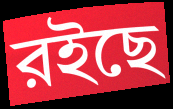
রইছে